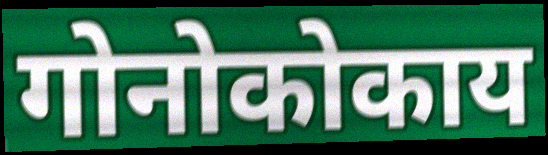
गोनोकोकाय